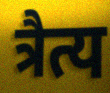
त्रैत्य